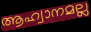
ആഹ്വാനമല്ല